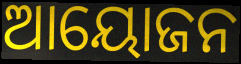
ଆୟୋଜନ